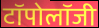
टॉपोलॉजी